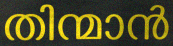
തിന്മാൻ